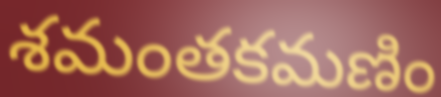
శమంతకమణిం